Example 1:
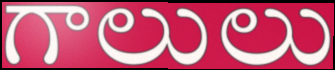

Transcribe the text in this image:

గాలులు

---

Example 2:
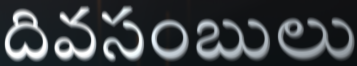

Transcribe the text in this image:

దివసంబులు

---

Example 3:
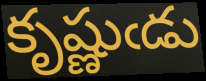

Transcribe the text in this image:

కృష్ణుఁడు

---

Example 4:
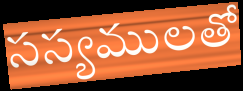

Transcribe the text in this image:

సస్యములతో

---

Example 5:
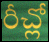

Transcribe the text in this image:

రీచ్లో